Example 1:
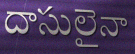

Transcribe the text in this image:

దాసులైనా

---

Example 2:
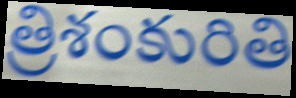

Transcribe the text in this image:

త్రిశంకురితి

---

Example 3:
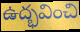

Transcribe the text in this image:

ఉద్భవించి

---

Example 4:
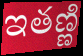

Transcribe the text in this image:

ఇతణ్ణి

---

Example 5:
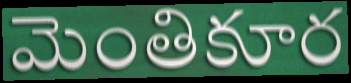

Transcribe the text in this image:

మెంతికూర